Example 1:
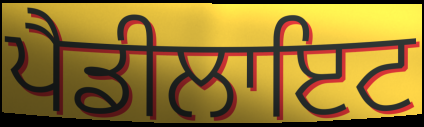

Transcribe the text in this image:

ਪੈਡੀਲਾਇਟ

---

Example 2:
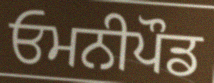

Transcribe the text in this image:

ਓਮਨੀਪੌਡ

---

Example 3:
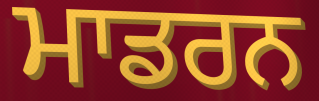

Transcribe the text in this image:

ਮਾਡਰਨ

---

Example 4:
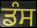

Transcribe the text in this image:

ਡੰਸ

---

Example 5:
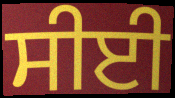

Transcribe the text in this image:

ਸੀਈ